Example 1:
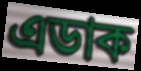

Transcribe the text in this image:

এডাক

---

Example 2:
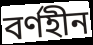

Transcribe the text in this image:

বৰ্ণহীন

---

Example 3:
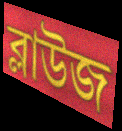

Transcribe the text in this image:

ব্লাউজ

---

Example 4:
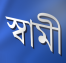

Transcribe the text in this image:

স্বামী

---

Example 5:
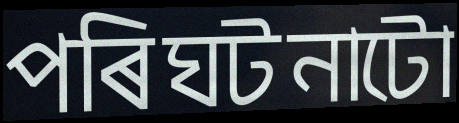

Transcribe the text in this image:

পৰিঘটনাটো